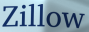
Zillow